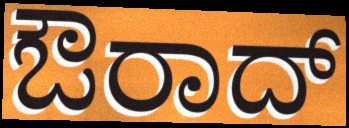
ಔರಾದ್